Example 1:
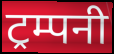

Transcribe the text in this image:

ट्रम्पनी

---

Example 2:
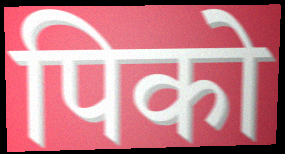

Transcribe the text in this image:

पिको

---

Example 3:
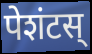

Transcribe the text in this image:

पेशंटस्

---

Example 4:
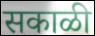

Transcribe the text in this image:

सकाळी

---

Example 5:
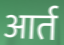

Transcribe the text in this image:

आर्त